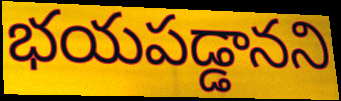
భయపడ్డానని